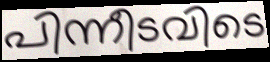
പിന്നീടവിടെ